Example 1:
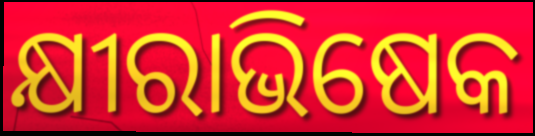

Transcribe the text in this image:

କ୍ଷୀରାଭିଷେକ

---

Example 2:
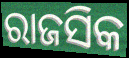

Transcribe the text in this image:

ରାଜସିକ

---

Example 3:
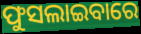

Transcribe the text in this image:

ଫୁସଲାଇବାରେ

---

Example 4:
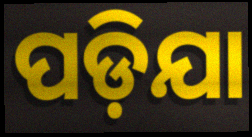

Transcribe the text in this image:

ପଡ଼ିଯା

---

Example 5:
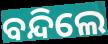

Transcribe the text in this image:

ବନ୍ଦିଲେ